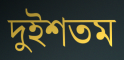
দুইশতম